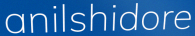
anilshidore